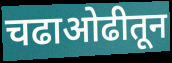
चढाओढीतून